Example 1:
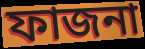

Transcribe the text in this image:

ফাজনা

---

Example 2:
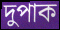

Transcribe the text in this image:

দুপাক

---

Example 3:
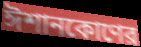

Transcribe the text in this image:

ঈশানকোণের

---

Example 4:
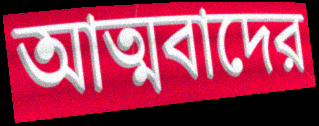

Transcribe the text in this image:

আত্মবাদের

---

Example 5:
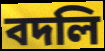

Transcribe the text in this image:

বদলি